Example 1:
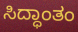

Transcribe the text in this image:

ಸಿದ್ಧಾಂತಂ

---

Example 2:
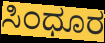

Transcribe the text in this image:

ಸಿಂಧೂರ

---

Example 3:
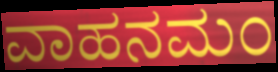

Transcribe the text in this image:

ವಾಹನಮಂ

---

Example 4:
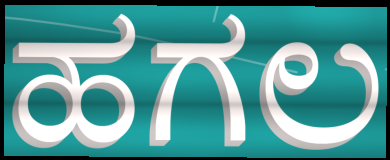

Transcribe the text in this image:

ಹಗಲ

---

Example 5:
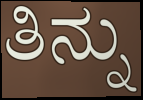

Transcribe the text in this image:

ತಿನ್ನು